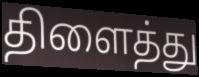
திளைத்து